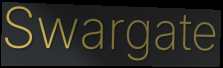
Swargate